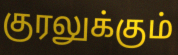
குரலுக்கும்